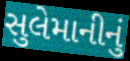
સુલેમાનીનું